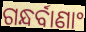
ଗନ୍ଧର୍ବାଣାଂ